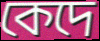
কেদে